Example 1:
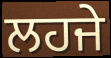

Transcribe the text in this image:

ਲਹਜੇ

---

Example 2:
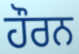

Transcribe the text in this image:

ਹੌਰਨ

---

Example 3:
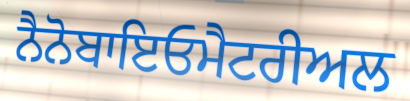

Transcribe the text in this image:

ਨੈਨੋਬਾਇਓਮੈਟਰੀਅਲ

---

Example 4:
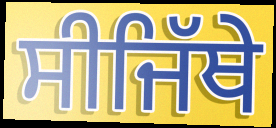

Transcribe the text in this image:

ਸੀਜਿੱਥੇ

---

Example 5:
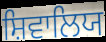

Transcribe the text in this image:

ਸ਼ਿਵਾਲਿਯ